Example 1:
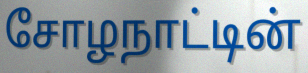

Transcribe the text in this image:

சோழநாட்டின்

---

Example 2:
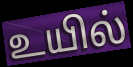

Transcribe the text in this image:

உயில்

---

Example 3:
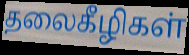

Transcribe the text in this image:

தலைகீழிகள்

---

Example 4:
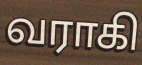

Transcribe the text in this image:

வராகி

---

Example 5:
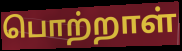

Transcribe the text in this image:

பொற்றாள்